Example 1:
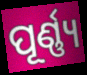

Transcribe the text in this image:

ପୂର୍ଣ୍ଣ୍ୟ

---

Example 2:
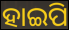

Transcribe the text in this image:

ହାଇପି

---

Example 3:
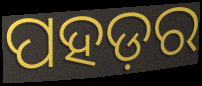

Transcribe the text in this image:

ପହଡ଼ର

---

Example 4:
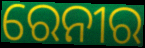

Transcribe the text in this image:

ରେନୀର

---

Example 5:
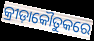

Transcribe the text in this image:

କ୍ରୀଡ଼ାକୌତୁକରେ